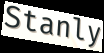
Stanly